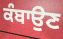
ਕੰਬਾਉਣ